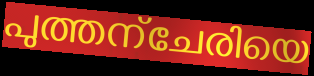
പുത്തന്ചേരിയെ